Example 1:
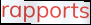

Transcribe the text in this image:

rapports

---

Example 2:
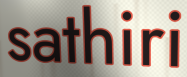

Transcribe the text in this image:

sathiri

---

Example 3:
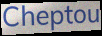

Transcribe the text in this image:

Cheptou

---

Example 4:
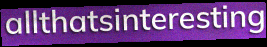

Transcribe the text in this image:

allthatsinteresting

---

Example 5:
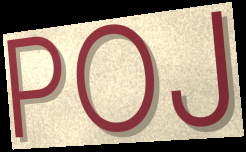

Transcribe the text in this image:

POJ